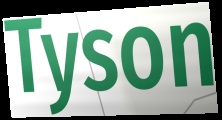
Tyson